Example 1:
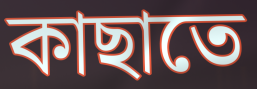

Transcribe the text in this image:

কাছাতে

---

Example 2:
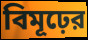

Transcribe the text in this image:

বিমূঢ়ের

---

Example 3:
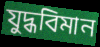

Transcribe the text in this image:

যুদ্ধবিমান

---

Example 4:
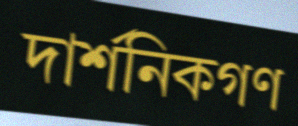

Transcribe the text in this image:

দার্শনিকগণ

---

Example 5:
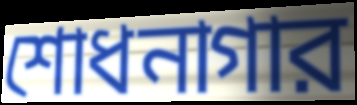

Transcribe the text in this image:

শোধনাগার